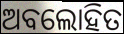
ଅବଲୋହିତ